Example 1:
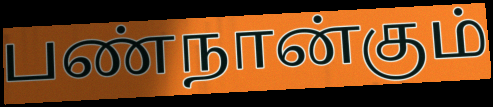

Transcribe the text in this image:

பண்நான்கும்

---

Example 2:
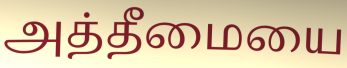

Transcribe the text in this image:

அத்தீமையை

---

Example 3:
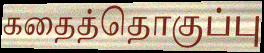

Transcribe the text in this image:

கதைத்தொகுப்பு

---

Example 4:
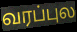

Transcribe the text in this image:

வரப்புல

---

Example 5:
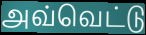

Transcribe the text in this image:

அவ்வெட்டு